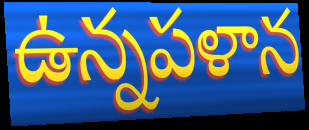
ఉన్నపళాన